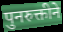
पुनरुक्तीने